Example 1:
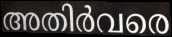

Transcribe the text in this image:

അതിർവരെ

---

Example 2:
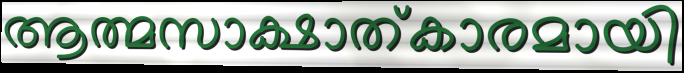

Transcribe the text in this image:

ആത്മസാക്ഷാത്കാരമായി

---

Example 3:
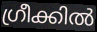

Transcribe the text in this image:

ഗ്രീക്കിൽ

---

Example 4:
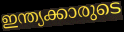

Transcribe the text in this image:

ഇന്ത്യക്കാരുടെ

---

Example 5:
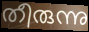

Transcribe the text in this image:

തീരുന്നു